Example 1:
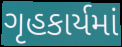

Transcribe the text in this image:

ગૃહકાર્યમાં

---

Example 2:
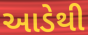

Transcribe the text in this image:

આડેથી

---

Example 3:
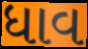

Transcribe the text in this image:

ધાવ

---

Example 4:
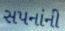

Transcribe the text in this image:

સપનાંની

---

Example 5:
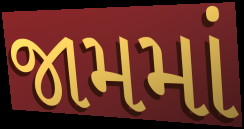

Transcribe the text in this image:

જામમાં